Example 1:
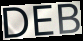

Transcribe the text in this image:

DEB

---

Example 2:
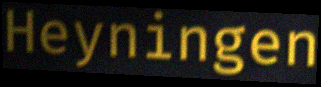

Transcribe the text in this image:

Heyningen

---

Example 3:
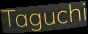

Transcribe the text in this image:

Taguchi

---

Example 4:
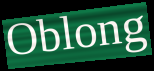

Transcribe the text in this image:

Oblong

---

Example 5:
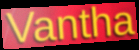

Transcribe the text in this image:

Vantha